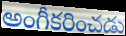
అంగీకరించడు